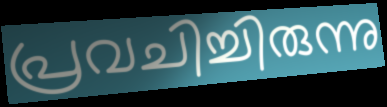
പ്രവചിച്ചിരുന്നു